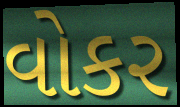
વોકર